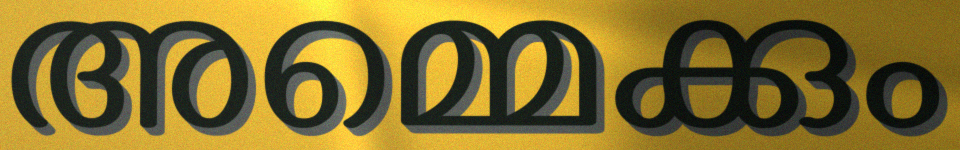
അമ്മെക്കും